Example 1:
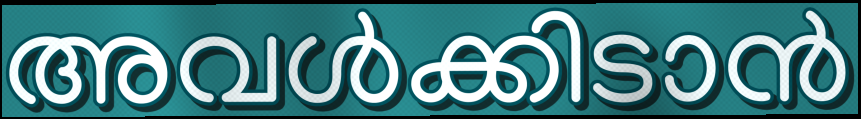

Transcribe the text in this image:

അവൾക്കിടാൻ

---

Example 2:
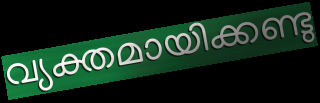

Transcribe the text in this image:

വ്യക്തമായിക്കണ്ടു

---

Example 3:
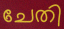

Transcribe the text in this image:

ചേതി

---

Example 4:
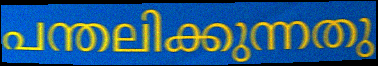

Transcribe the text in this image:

പന്തലിക്കുന്നതു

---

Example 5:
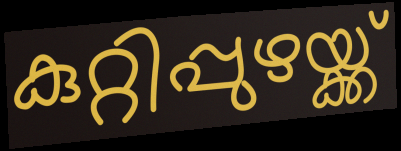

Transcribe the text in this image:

കുറ്റിപ്പുഴയ്ക്ക്